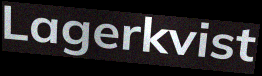
Lagerkvist